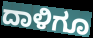
ದಾಳಿಗೂ